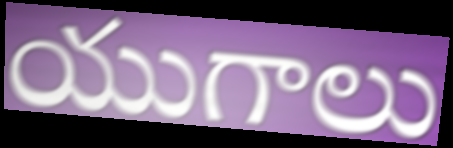
యుగాలు